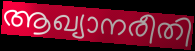
ആഖ്യാനരീതി